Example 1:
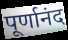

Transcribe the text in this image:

पूर्णानंद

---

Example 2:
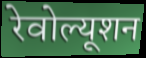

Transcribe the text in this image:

रेवोल्यूशन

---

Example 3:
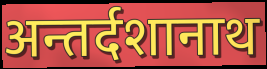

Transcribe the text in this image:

अन्तर्दशानाथ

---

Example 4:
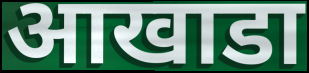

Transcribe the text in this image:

आखाडा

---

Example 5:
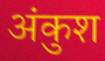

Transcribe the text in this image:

अंकुश